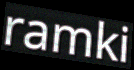
ramki